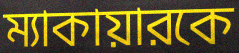
ম্যাকায়ারকে